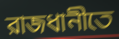
রাজধানীতে